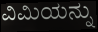
ವಿಮಿಯನ್ನು